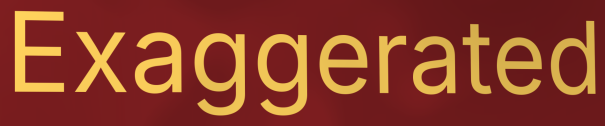
Exaggerated